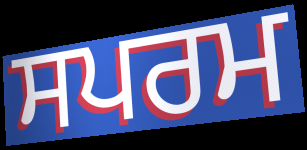
ਸਪਰਮ